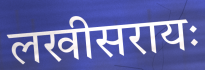
लखीसरायः